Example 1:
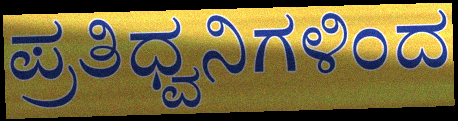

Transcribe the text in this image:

ಪ್ರತಿಧ್ವನಿಗಳಿಂದ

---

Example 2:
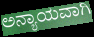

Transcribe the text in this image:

ಅನ್ಯಾಯವಾಗಿ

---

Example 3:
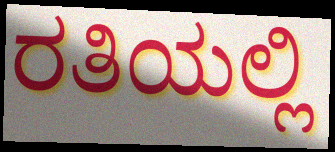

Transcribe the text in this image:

ರತಿಯಲ್ಲಿ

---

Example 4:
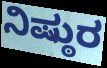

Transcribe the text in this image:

ನಿಷ್ಠುರ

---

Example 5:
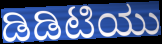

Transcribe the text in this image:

ಡಿಡಿಟಿಯು